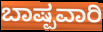
ಬಾಷ್ಪವಾರಿ